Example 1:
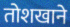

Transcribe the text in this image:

तोशखाने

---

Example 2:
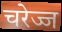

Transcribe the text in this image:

चरेज्ज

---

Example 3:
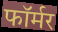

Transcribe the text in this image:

फॉर्मर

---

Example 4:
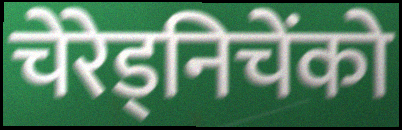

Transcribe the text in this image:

चेरेड्निचेंको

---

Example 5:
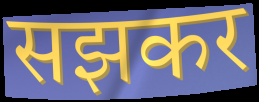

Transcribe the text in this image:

सझकर